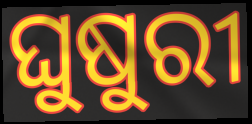
ଘୁଷୁରୀ